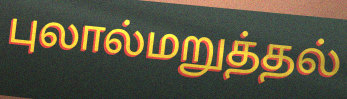
புலால்மறுத்தல்